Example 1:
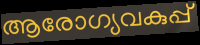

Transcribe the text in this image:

ആരോഗ്യവകുപ്പ്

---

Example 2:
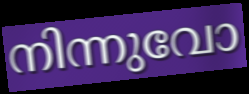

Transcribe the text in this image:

നിന്നുവോ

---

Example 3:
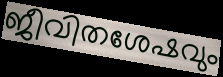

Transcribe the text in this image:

ജീവിതശേഷവും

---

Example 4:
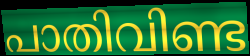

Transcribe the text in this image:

പാതിവിണ്ട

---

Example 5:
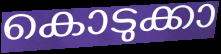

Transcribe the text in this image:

കൊടുക്കാ